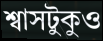
শ্বাসটুকুও